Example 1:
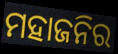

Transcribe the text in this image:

ମହାଜନିର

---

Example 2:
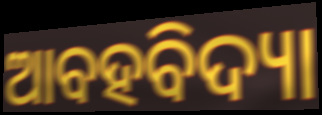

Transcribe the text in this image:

ଆବହବିଦ୍ୟା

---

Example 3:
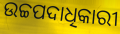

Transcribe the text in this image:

ଉଚ୍ଚପଦାଧିକାରୀ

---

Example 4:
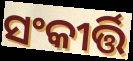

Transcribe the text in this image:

ସଂକୀର୍ତ୍ତି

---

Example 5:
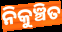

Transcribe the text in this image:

ନିକୁଞ୍ଚିତ